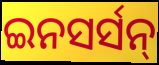
ଇନସର୍ସନ୍